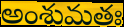
అంశుమతః